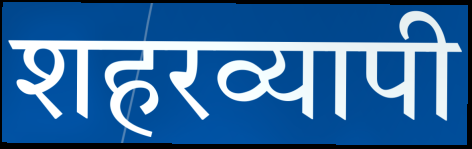
शहरव्यापी